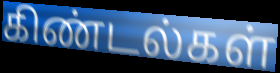
கிண்டல்கள்